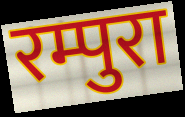
रम्पुरा